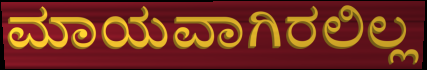
ಮಾಯವಾಗಿರಲಿಲ್ಲ